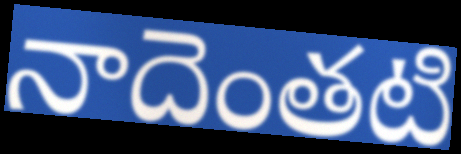
నాదెంతటి